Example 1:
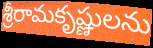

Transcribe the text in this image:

శ్రీరామకృష్ణులను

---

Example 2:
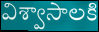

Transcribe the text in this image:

విశ్వాసాలకి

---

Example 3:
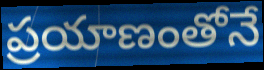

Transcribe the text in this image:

ప్రయాణంతోనే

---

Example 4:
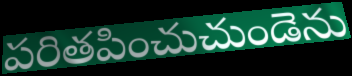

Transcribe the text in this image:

పరితపించుచుండెను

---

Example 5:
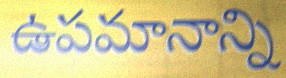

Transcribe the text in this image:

ఉపమానాన్ని